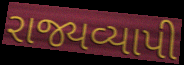
રાજ્યવ્યાપી